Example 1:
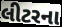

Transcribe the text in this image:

લીટરના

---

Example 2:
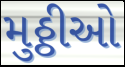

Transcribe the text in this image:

મુઠ્ઠીઓ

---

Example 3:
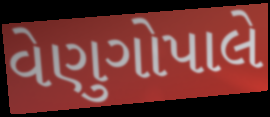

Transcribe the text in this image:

વેણુગોપાલે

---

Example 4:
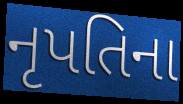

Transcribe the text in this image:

નૃપતિના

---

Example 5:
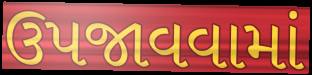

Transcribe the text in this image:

ઉપજાવવામાં